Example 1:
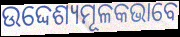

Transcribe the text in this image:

ଉଦ୍ଦେଶ୍ୟମୂଳକଭାବେ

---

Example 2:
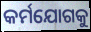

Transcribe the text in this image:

କର୍ମଯୋଗକୁ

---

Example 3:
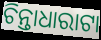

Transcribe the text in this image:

ଚିନ୍ତାଧାରାଟା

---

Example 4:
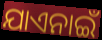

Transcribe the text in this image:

ଯାଏନାଇଁ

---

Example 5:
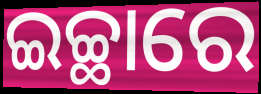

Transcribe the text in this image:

ଇଚ୍ଛାରେ